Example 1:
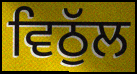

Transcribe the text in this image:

ਵਿਠੁੱਲ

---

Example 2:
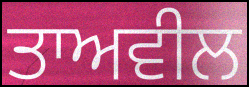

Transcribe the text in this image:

ਤਾਅਵੀਲ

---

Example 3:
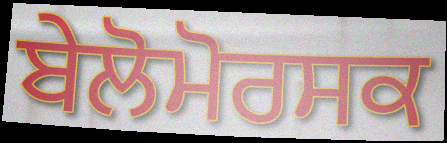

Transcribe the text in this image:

ਬੇਲੋਮੋਰਸਕ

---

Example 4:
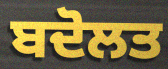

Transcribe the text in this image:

ਬਦੋਲਤ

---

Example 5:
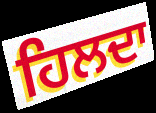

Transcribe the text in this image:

ਹਿਲਦਾ